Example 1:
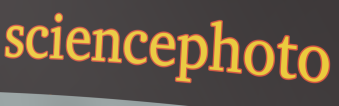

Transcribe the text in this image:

sciencephoto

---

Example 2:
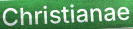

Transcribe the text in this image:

Christianae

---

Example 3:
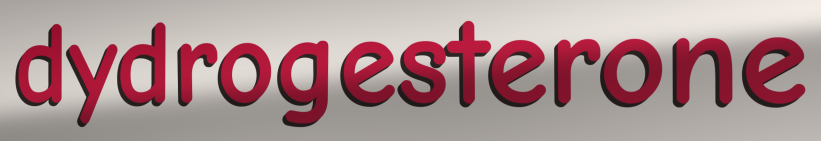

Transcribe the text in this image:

dydrogesterone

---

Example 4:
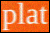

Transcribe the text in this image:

plat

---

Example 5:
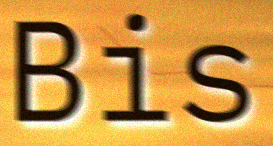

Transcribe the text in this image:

Bis